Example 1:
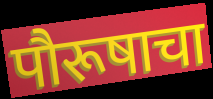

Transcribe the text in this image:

पौरूषाचा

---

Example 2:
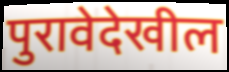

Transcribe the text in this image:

पुरावेदेखील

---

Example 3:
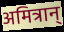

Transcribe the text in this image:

अमित्रान्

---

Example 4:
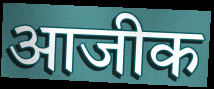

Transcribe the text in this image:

आजीक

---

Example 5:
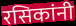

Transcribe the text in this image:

रसिकांनी